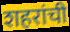
शहरांची